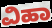
ವಿಹಾ